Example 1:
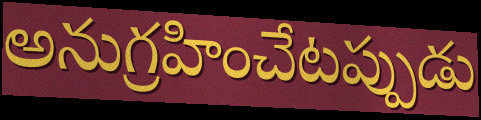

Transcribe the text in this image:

అనుగ్రహించేటప్పుడు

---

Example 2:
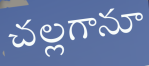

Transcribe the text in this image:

చల్లగానూ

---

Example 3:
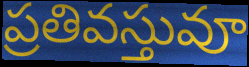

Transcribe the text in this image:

ప్రతివస్తువూ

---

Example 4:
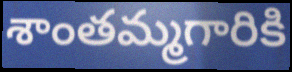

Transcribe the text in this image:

శాంతమ్మగారికి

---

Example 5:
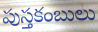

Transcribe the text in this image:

పుస్తకంబులు